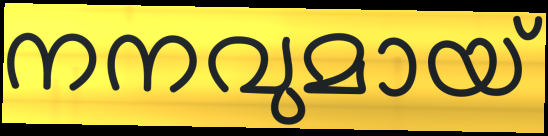
നനവുമായ്